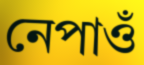
নেপাওঁ